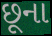
છૂના